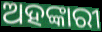
ଅହଙ୍କାରୀ